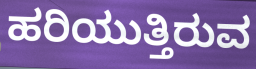
ಹರಿಯುತ್ತಿರುವ